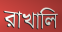
রাখালি